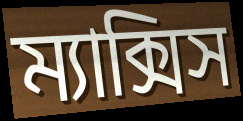
ম্যাক্সিস